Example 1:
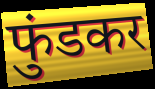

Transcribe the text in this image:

फुंडकर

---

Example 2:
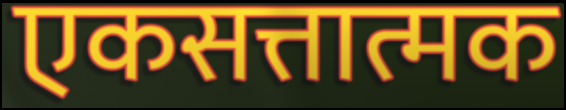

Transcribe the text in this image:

एकसत्तात्मक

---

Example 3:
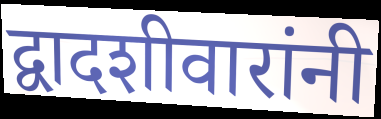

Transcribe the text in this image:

द्वादशीवारांनी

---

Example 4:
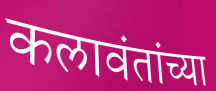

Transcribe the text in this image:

कलावंतांच्या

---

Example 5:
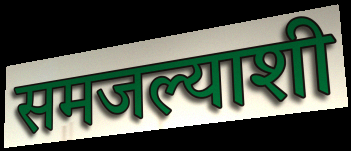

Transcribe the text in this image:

समजल्याशी